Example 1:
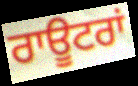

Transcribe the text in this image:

ਰਾਊਟਰਾਂ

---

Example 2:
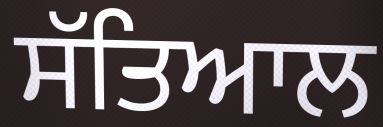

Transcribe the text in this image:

ਸੱਤਿਆਲ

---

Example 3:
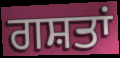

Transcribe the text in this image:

ਗਸ਼ਤਾਂ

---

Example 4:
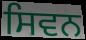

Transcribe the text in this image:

ਸਿਵਨ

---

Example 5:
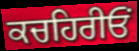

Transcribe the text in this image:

ਕਚਹਿਰੀਓਂ